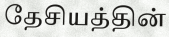
தேசியத்தின்